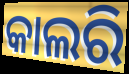
କାଲରି